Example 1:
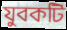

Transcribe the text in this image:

যুবকটি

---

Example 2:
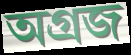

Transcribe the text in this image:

অগ্রজ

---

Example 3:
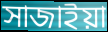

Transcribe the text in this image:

সাজাইয়া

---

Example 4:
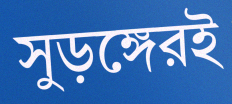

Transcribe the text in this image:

সুড়ঙ্গেরই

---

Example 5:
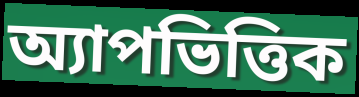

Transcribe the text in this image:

অ্যাপভিত্তিক